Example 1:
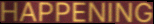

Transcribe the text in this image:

HAPPENING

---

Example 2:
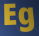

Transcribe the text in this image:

Eg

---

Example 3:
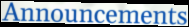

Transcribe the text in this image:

Announcements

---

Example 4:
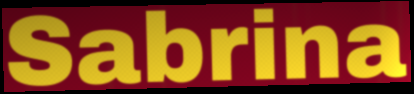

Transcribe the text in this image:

Sabrina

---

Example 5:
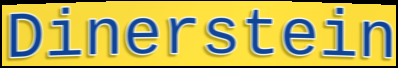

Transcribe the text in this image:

Dinerstein